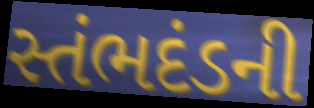
સ્તંભદંડની